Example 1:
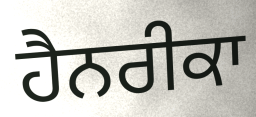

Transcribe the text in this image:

ਹੈਨਰੀਕਾ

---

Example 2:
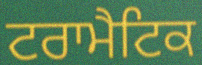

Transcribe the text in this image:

ਟਰਾਮੈਟਿਕ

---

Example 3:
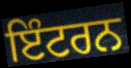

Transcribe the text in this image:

ਇੰਟਰਨ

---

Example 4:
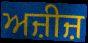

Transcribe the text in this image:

ਅਜ਼ੀਜ਼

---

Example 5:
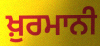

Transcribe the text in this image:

ਖ਼ੁਰਮਾਨੀ